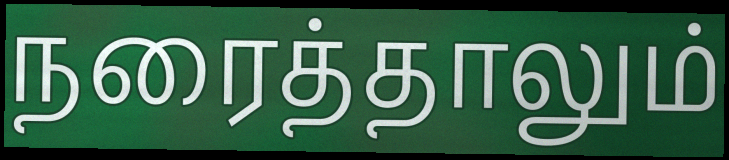
நரைத்தாலும்